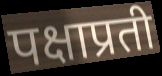
पक्षाप्रती